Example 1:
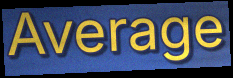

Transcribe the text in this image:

Average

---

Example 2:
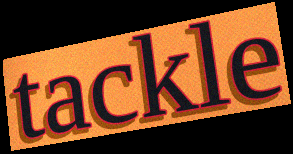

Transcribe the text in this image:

tackle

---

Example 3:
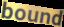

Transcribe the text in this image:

bound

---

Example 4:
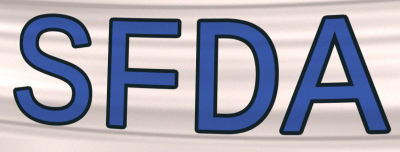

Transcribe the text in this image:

SFDA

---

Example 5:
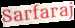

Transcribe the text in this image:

Sarfaraj